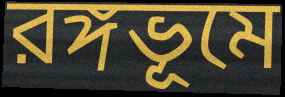
রঙ্গভূমে